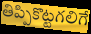
తిప్పికొట్టగలిగే